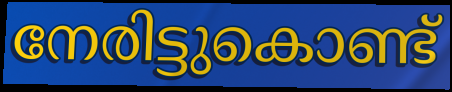
നേരിട്ടുകൊണ്ട്